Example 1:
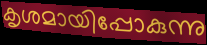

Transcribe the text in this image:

കൃശമായിപ്പോകുന്നു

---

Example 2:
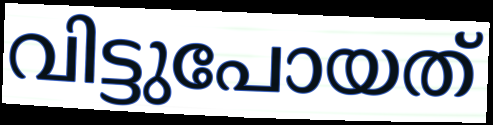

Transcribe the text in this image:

വിട്ടുപോയത്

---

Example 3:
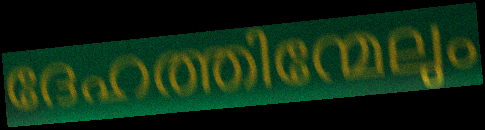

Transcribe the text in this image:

ദേഹത്തിന്മേലും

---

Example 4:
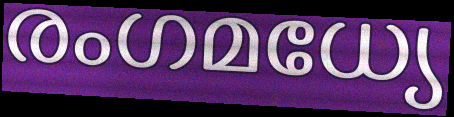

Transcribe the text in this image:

രംഗമധ്യേ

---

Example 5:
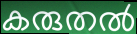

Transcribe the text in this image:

കരുതൽ